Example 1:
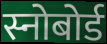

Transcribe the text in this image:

स्नोबोर्ड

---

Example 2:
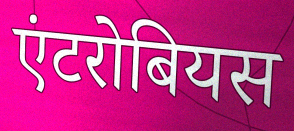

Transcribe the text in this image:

एंटरोबियस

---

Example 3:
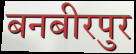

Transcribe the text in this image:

बनबीरपुर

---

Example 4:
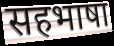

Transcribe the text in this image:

सहभाषा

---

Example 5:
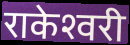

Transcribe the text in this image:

राकेश्वरी